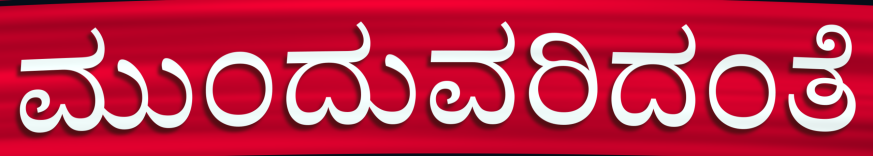
ಮುಂದುವರಿದಂತೆ